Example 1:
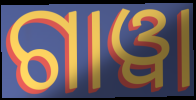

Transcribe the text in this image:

ଗାୱା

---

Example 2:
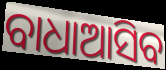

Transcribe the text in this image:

ବାଧାଆସିବ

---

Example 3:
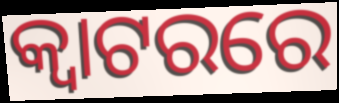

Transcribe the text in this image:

କ୍ୱାଟରରେ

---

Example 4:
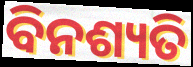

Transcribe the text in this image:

ବିନଶ୍ୟତି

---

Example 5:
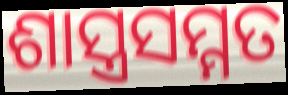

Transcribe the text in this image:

ଶାସ୍ତ୍ରସମ୍ମତ